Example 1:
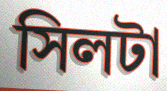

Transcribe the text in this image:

সিলটা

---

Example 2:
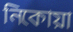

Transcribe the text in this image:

নিকোয়া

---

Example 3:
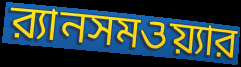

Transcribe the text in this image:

র‍্যানসমওয়্যার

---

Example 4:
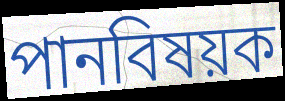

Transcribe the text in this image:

পানবিষয়ক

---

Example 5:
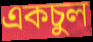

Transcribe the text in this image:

একচুল